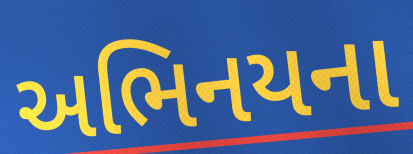
અભિનયના